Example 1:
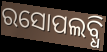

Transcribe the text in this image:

ରସୋପଲବ୍ଧି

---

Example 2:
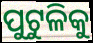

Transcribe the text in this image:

ପୁଟୁଳିକୁ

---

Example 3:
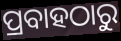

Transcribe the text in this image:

ପ୍ରବାହଠାରୁ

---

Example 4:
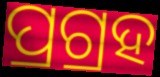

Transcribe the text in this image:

ପ୍ରଗ୍ରହ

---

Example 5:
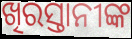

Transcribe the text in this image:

ଖିରସ୍ତାନୀଙ୍କ